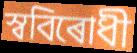
স্ববিৰোধী